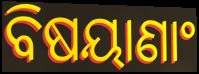
ବିଷୟାଣାଂ